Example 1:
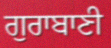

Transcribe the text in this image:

ਗੁਰਾਬਾਣੀ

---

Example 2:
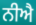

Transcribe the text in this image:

ਨੀਐ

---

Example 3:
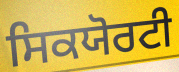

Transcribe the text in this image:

ਸਿਕਯੋਰਟੀ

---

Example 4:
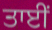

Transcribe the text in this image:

ਤਾਈਂ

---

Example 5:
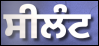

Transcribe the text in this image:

ਸੀਲੰਟ